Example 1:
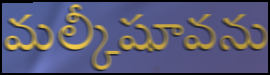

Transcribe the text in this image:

మల్కీషూవను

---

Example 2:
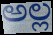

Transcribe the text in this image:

అల్ల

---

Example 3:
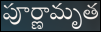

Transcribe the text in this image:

పూర్ణామృత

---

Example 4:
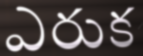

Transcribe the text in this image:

ఎరుక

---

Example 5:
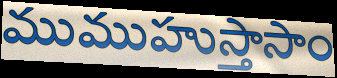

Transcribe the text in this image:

ముముహుస్తాసాం